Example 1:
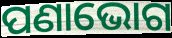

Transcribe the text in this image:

ପଣାଭୋଗ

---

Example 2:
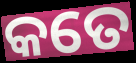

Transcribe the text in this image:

କତେ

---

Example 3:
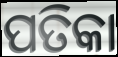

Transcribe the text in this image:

ପତିକା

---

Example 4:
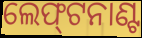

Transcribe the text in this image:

ଲେଫ୍‌ଟନାଣ୍ଟ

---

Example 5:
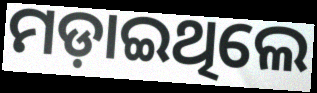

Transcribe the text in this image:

ମଡ଼ାଇଥିଲେ